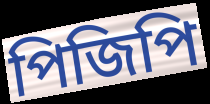
পিজিপি